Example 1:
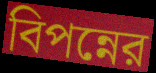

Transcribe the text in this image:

বিপন্নের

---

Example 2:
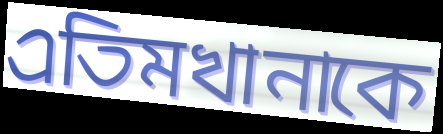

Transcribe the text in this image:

এতিমখানাকে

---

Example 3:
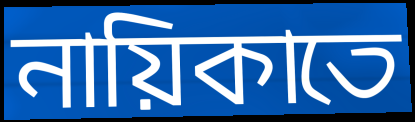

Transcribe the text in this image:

নায়িকাতে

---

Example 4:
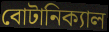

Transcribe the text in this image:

বোটানিক্যাল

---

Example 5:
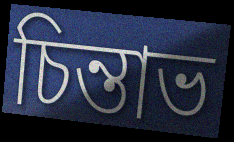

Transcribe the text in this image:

চিন্তাভ